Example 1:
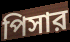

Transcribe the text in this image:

পিসার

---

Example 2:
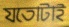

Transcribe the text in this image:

যতোটাই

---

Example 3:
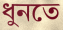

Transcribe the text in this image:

ধুনতে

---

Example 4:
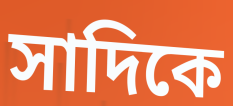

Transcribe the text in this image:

সাদিকে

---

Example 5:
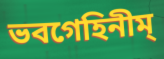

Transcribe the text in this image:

ভবগেহিনীম্